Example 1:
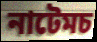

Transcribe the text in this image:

নাটেমচ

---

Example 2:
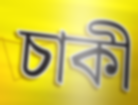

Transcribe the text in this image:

চাকী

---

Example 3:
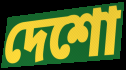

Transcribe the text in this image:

দেশো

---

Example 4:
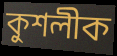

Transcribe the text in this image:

কুশলীক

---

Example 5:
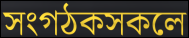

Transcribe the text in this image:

সংগঠকসকলে